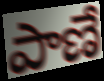
పాణే